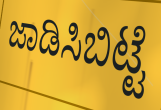
ಜಾಡಿಸಿಬಿಟ್ಟೆ